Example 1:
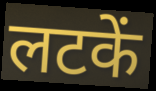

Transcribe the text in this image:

लटकें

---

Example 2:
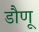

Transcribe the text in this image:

डौणू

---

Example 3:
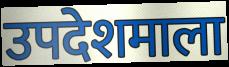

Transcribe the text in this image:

उपदेशमाला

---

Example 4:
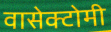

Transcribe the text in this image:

वासेक्टोमी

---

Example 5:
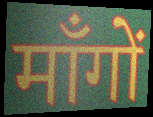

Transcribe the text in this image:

माँगों